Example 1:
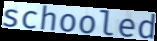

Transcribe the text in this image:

schooled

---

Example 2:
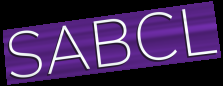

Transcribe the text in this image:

SABCL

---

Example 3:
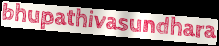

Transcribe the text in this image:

bhupathivasundhara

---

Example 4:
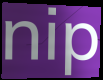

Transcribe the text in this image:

nip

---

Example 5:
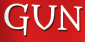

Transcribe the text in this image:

GUN